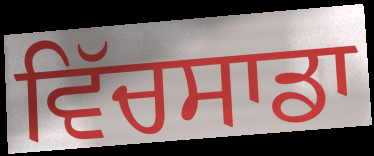
ਵਿੱਚਸਾਡਾ